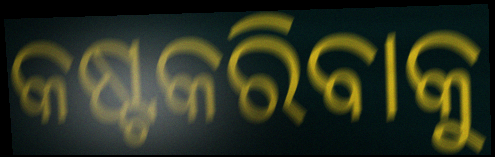
କଷ୍ଟକରିବାକୁ